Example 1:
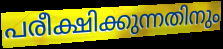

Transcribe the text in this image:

പരീക്ഷിക്കുന്നതിനും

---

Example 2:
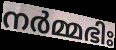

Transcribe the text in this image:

നർമ്മഭിഃ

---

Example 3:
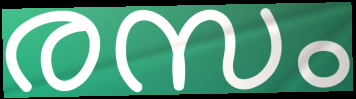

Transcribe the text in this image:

രസം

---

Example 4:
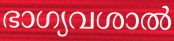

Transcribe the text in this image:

ഭാഗ്യവശാൽ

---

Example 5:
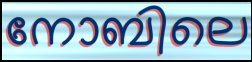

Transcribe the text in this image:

നോബിലെ